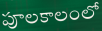
పూలకాలంలో